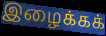
இழைக்கக்